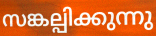
സങ്കല്പിക്കുന്നു